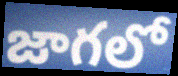
జాగలో